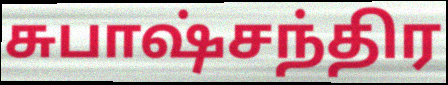
சுபாஷ்சந்திர